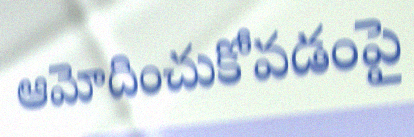
ఆమోదించుకోవడంపై